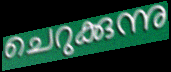
ചെറുക്കുന്നു